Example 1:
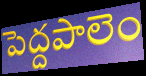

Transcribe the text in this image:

పెద్దపాలెం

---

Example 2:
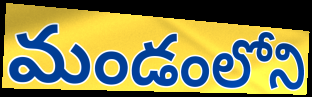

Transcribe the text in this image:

మండంలోని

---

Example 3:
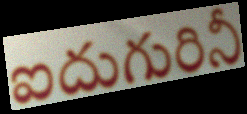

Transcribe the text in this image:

ఐదుగురినీ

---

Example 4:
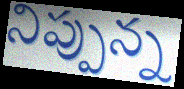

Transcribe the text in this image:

నిప్పున్న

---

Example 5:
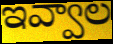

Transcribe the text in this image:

ఇవ్వాల